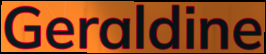
Geraldine